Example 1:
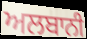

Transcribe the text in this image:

ਅਲਬਾਨੀ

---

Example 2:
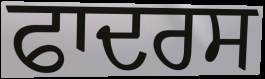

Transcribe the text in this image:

ਫਾਦਰਸ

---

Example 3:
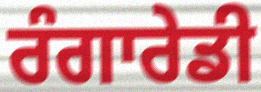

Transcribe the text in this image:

ਰੰਗਾਰੇਡੀ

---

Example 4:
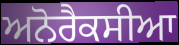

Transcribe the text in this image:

ਅਨੋਰੈਕਸੀਆ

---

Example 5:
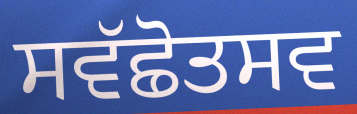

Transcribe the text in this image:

ਸਵੱਛੋਤਸਵ